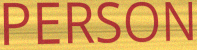
PERSON